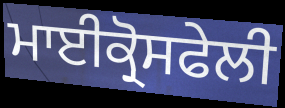
ਮਾਈਕ੍ਰੋਸਫੇਲੀ